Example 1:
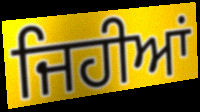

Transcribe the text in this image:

ਜਿਹੀਆਂ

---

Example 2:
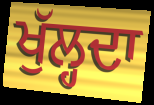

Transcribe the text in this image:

ਖੁੱਲ੍ਹਦਾ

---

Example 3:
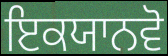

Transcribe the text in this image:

ਇਕਯਾਨਵੋ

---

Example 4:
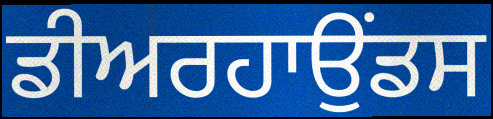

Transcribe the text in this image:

ਡੀਅਰਹਾਉਂਡਸ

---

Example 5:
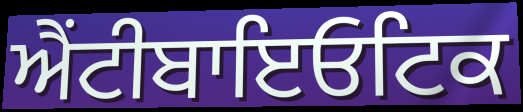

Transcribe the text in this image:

ਐਂਟੀਬਾਇਓਟਿਕ